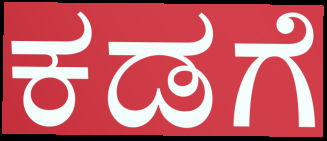
ಕಡಗೆ